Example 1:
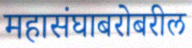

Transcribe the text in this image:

महासंघाबरोबरील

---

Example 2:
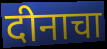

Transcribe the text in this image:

दीनाचा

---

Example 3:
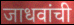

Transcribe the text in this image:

जाधवांची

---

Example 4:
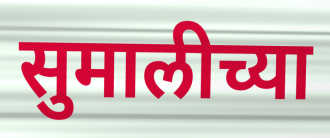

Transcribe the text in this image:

सुमालीच्या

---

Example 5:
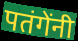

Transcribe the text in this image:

पतंगेंनी